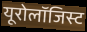
यूरोलॉजिस्ट